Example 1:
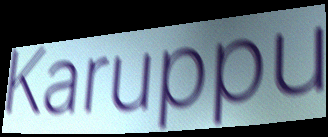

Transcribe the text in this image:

Karuppu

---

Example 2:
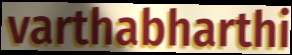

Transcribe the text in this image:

varthabharthi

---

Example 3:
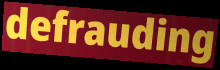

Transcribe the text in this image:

defrauding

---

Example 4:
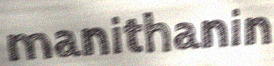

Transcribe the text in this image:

manithanin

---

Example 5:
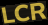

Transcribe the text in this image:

LCR